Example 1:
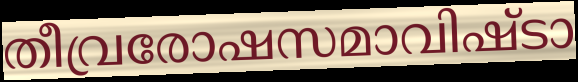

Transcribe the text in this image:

തീവ്രരോഷസമാവിഷ്ടാ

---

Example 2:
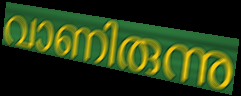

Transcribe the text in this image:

വാണിരുന്നു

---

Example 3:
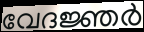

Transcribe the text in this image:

വേദജ്ഞർ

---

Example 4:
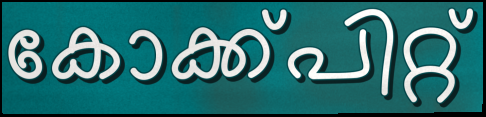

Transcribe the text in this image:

കോക്ക്പിറ്റ്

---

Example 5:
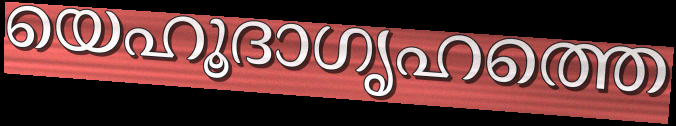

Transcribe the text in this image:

യെഹൂദാഗൃഹത്തെ